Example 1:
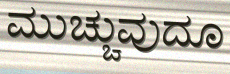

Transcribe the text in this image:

ಮುಚ್ಚುವುದೂ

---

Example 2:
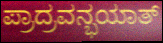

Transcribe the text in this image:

ಪ್ರಾದ್ರವನ್ಭಯಾತ್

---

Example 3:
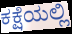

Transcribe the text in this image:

ಕಕ್ಷೆಯಲ್ಲಿ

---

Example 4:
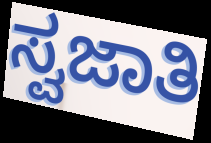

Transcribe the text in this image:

ಸ್ವಜಾತಿ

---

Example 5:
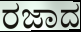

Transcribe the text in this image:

ರಜಾದ